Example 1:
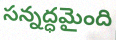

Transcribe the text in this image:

సన్నద్ధమైంది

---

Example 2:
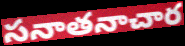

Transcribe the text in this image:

సనాతనాచార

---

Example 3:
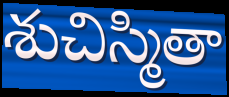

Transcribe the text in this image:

శుచిస్మితా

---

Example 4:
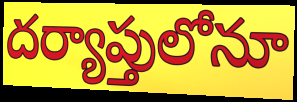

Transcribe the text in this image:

దర్యాప్తులోనూ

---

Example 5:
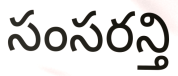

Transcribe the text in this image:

సంసరన్తి